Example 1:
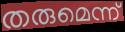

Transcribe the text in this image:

തരുമെന്ന്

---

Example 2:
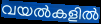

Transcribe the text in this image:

വയൽകളിൽ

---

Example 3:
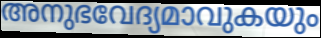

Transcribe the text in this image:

അനുഭവേദ്യമാവുകയും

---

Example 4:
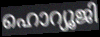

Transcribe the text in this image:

ഹൊറ്യൂജി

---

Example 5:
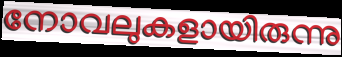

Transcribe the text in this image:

നോവലുകളായിരുന്നു